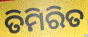
ତିମିରିତ